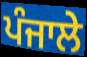
ਪੰਜਾਲੇ